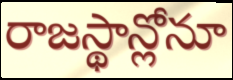
రాజస్థాన్లోనూ